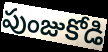
పుంజుకోడి